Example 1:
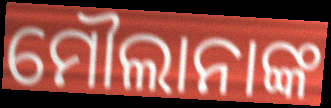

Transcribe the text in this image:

ମୌଲାନାଙ୍କ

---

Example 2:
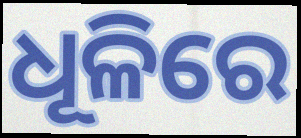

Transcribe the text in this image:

ଧୂଳିରେ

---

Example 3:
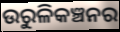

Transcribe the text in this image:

ଉରୁଳିକଞ୍ଚନର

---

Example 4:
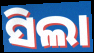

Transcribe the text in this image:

ସିଲା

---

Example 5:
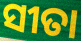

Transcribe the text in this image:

ସୀତା